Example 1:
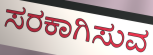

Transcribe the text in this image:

ಸರಕಾಗಿಸುವ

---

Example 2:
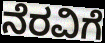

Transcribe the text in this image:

ನೆರವಿಗೆ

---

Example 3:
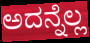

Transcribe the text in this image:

ಅದನ್ನೆಲ್ಲ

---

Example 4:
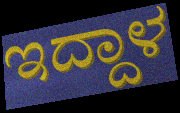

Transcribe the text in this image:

ಇದ್ದಾಳ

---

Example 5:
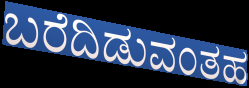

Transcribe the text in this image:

ಬರೆದಿಡುವಂತಹ